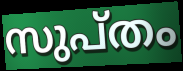
സുപ്തം